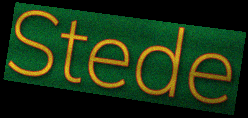
Stede